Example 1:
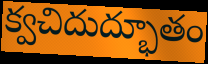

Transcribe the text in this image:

క్వచిదుద్భూతం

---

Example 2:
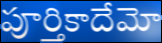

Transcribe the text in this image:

పూర్తికాదేమో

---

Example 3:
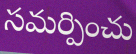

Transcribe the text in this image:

సమర్పించు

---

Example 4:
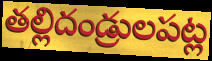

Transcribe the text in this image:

తల్లిదండ్రులపట్ల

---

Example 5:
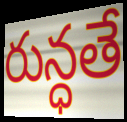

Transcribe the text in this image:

రున్ధతే